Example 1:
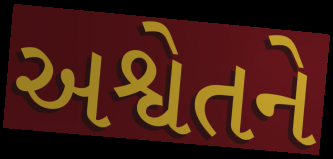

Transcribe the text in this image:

અશ્વેતને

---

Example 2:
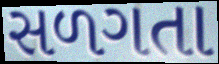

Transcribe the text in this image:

સળગતા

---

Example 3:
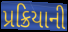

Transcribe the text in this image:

પ્રક્રિયાની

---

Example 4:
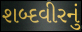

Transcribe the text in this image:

શબ્દવીરનું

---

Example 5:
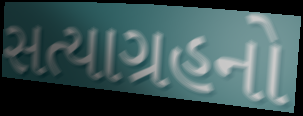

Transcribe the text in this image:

સત્યાગ્રહનો